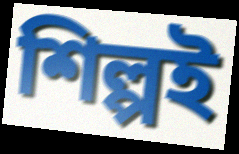
শিল্পই